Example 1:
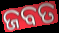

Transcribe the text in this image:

ଜବତ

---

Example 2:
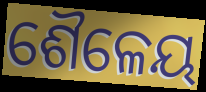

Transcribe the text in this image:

ଶୈଳେୟ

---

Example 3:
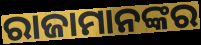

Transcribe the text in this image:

ରାଜାମାନଙ୍କର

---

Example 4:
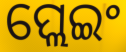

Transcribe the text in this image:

ପ୍ଲେଇଂ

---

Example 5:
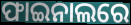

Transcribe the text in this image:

ଫାଇନାଲରେ